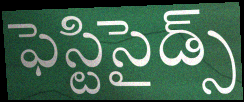
ఫెస్టిసైడ్స్